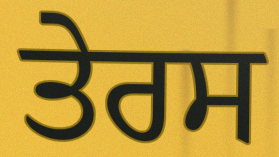
ਤੇਰਸ